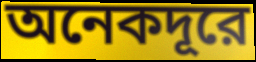
অনেকদূরে